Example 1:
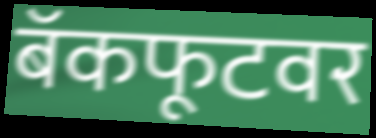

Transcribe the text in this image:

बॅकफूटवर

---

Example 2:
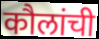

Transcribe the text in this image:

कौलांची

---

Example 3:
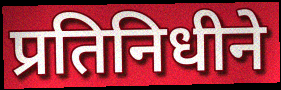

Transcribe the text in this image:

प्रतिनिधीने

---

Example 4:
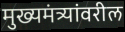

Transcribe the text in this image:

मुख्यमंत्र्यांवरील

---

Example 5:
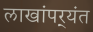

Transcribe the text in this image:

लाखांपर्यंत